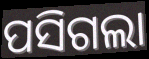
ପସିଗଲା